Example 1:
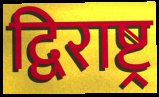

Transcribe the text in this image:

द्विराष्ट्र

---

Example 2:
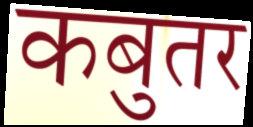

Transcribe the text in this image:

कबुतर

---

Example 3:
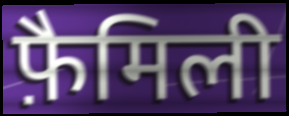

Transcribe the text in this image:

फ़ैमिली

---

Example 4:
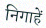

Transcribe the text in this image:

निगाहें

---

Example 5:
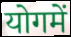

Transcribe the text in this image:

योगमें